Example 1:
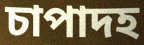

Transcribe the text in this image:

চাপাদহ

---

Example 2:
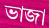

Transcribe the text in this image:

ভাজা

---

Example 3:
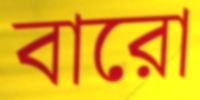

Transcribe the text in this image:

বারো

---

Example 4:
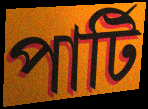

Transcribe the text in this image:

পার্টি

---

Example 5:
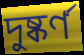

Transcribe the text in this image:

দুষ্কর্ণ